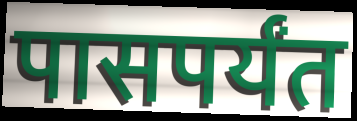
पासपर्यंत